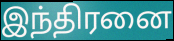
இந்திரனை